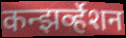
कन्झर्व्हेशन